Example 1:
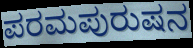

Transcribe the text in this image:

ಪರಮಪುರುಷನ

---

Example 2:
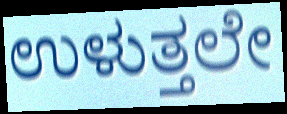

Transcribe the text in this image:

ಉಳುತ್ತಲೇ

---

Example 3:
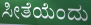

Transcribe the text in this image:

ಸೀತೆಯೆಂದು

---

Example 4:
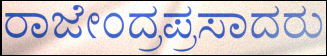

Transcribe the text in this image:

ರಾಜೇಂದ್ರಪ್ರಸಾದರು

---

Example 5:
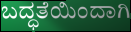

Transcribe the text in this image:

ಬದ್ಧತೆಯಿಂದಾಗಿ